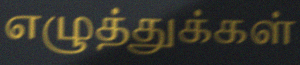
எழுத்துக்கள்